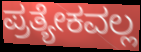
ಪ್ರತ್ಯೇಕವಲ್ಲ